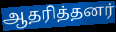
ஆதரித்தனர்